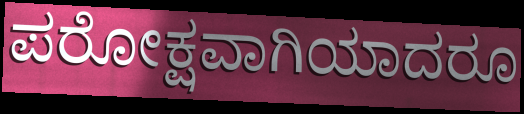
ಪರೋಕ್ಷವಾಗಿಯಾದರೂ